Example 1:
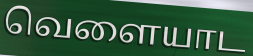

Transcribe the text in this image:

வெளையாட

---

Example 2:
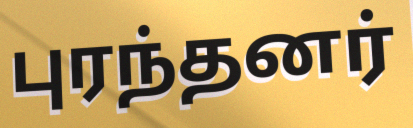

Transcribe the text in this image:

புரந்தனர்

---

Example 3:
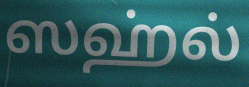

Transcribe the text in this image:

ஸஹ்ல்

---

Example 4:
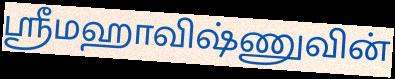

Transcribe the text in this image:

ஸ்ரீமஹாவிஷ்ணுவின்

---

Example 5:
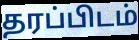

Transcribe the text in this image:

தரப்பிடம்